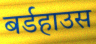
बर्डहाउस